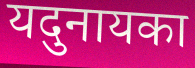
यदुनायका